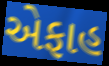
એફાહ